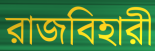
রাজবিহারী